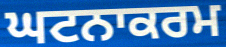
ਘਟਨਾਕਰਮ